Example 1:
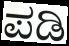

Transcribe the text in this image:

ಪಡಿ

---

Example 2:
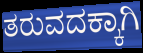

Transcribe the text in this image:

ತರುವದಕ್ಕಾಗಿ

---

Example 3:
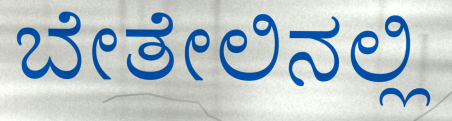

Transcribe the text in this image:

ಬೇತೇಲಿನಲ್ಲಿ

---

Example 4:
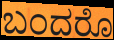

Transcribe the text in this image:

ಬಂದರೊ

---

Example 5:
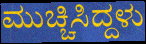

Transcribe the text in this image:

ಮುಚ್ಚಿಸಿದ್ದಳು